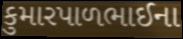
કુમારપાળભાઈના